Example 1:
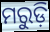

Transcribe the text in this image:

ମରୁଡ଼ି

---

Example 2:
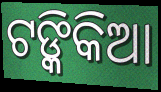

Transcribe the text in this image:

ଟଙ୍କିକିଆ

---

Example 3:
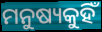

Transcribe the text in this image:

ମନୁଷ୍ୟକୁହିଁ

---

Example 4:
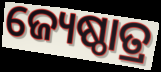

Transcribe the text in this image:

ଜ୍ୟେଷ୍ଠାତ୍ର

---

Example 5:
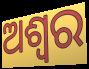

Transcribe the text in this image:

ଅଶ୍ୱର